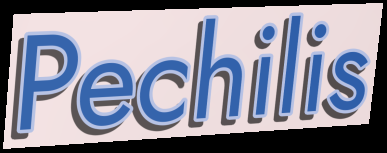
Pechilis